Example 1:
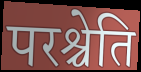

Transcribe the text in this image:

परश्चेति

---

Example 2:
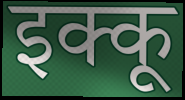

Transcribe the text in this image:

इक्कू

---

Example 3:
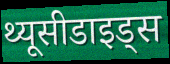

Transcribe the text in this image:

थ्यूसीडाइड्स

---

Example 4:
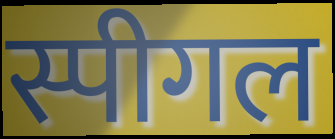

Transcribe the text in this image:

स्पीगल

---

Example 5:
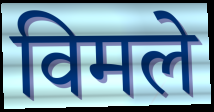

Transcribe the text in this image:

विमले